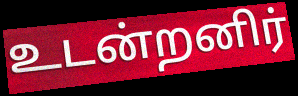
உடன்றனிர்